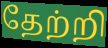
தேற்றி